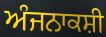
ਅੰਜਨਾਕਸ਼ੀ